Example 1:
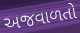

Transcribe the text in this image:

અજવાળતો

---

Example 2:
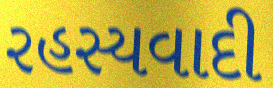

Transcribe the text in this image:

રહસ્યવાદી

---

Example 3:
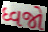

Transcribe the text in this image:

ધ્વજો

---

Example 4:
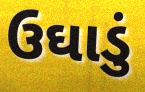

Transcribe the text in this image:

ઉઘાડું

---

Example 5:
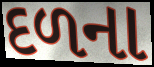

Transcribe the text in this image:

દળના